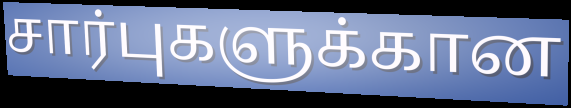
சார்புகளுக்கான